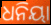
ଧନିୟା